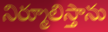
నిర్మూలిస్తాను